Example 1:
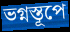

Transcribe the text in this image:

ভগ্নস্তূপে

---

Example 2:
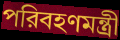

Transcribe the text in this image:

পরিবহণমন্ত্রী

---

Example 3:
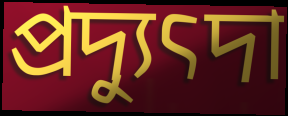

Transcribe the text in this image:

প্রদ্যুৎদা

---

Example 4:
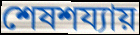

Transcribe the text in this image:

শেষশয্যায়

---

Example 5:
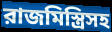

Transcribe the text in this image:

রাজমিস্ত্রিসহ